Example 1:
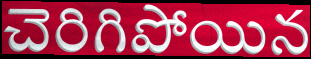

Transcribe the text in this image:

చెరిగిపోయిన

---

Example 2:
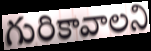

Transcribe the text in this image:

గురికావాలని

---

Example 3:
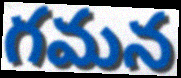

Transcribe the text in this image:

గమన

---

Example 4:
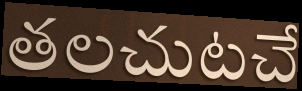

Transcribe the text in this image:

తలచుటచే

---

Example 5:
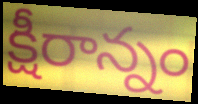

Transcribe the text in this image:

క్షీరాన్నం